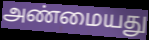
அண்மையது